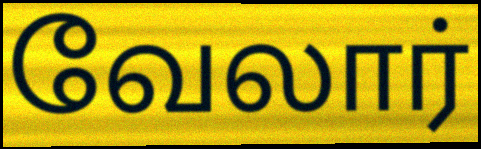
வேலார்